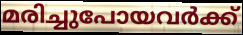
മരിച്ചുപോയവർക്ക്